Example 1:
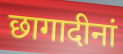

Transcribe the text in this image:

छागादीनां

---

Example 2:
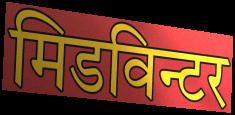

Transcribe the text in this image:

मिडविन्टर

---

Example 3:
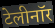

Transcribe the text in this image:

टेलीनॉर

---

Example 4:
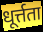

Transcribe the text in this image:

धूर्त्तता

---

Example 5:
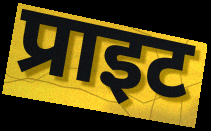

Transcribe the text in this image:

प्राइट